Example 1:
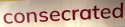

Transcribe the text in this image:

consecrated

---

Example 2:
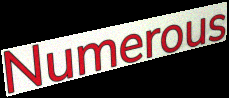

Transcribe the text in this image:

Numerous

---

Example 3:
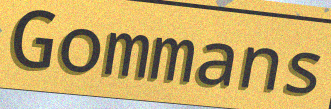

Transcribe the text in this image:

Gommans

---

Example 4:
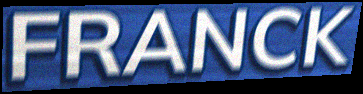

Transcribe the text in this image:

FRANCK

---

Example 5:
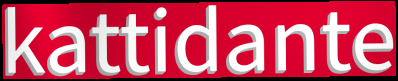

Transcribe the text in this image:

kattidante